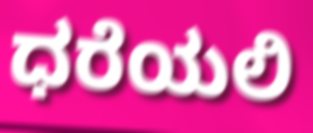
ಧರೆಯಲಿ